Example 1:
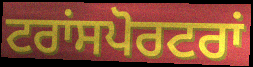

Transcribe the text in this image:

ਟਰਾਂਸਪੋਰਟਰਾਂ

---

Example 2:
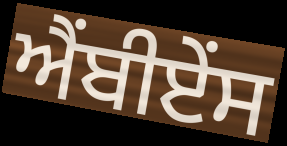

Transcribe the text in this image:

ਐਂਬੀਏਂਸ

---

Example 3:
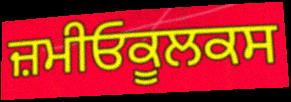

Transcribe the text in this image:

ਜ਼ਮੀਓਕੂਲਕਸ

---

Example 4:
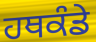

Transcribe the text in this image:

ਹਥਕੰਡੇ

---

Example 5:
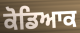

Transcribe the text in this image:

ਕੋਡਿਆਕ